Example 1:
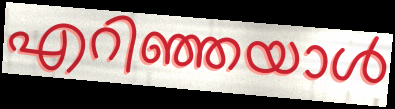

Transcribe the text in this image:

എറിഞ്ഞയാൾ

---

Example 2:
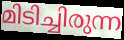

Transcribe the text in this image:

മിടിച്ചിരുന്ന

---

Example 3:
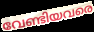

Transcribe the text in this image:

വേണ്ടിയവരെ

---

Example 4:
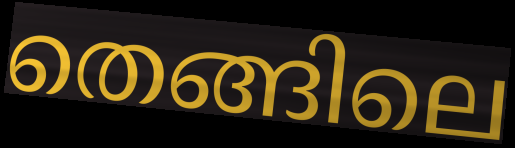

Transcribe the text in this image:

തെങ്ങിലെ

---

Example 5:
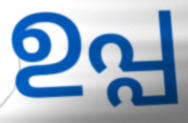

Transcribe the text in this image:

ഉപ്പ